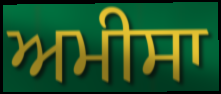
ਅਮੀਸਾ